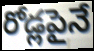
రోడ్లపైనే